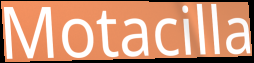
Motacilla